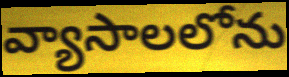
వ్యాసాలలోను